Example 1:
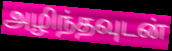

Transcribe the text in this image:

அழிந்தவுடன்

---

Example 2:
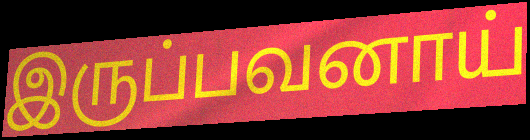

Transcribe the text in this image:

இருப்பவனாய்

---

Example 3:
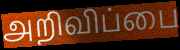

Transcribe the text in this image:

அறிவிப்பை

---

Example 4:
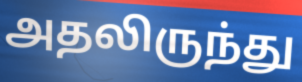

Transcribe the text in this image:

அதலிருந்து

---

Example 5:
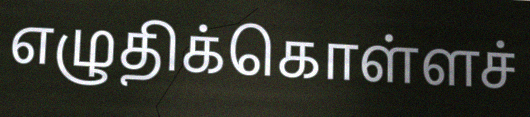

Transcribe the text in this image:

எழுதிக்கொள்ளச்